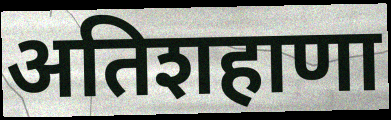
अतिशहाणा